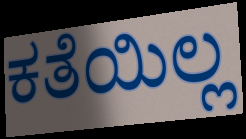
ಕತೆಯಿಲ್ಲ